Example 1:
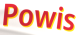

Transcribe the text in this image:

Powis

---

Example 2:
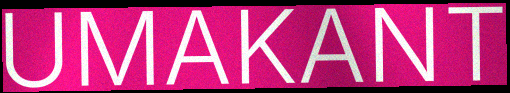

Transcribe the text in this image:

UMAKANT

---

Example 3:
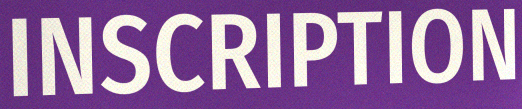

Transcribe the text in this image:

INSCRIPTION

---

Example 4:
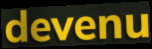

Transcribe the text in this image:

devenu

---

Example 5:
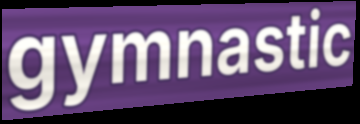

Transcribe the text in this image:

gymnastic